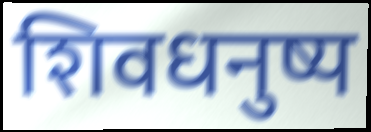
शिवधनुष्य